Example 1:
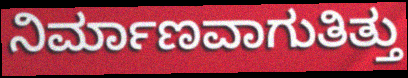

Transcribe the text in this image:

ನಿರ್ಮಾಣವಾಗುತಿತ್ತು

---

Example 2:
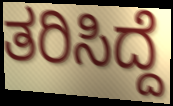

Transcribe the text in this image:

ತರಿಸಿದ್ದೆ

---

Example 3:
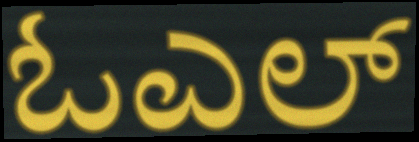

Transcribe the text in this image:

ಓಎಲ್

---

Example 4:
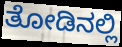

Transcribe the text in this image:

ತೋಡಿನಲ್ಲಿ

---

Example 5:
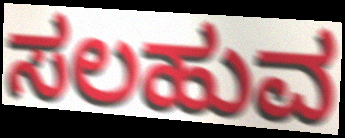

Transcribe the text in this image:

ಸಲಹುವ